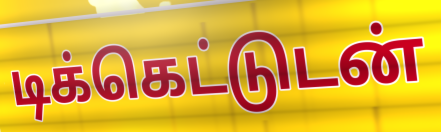
டிக்கெட்டுடன்